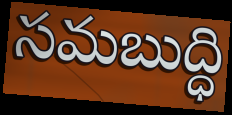
సమబుద్ధి